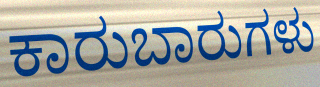
ಕಾರುಬಾರುಗಳು